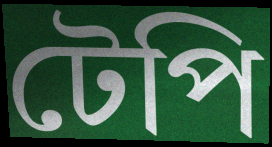
টেপি